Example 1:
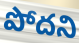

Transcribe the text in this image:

పోదని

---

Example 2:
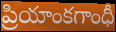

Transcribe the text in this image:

ప్రియాంకగాంధీ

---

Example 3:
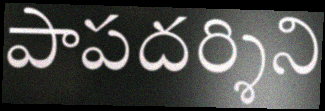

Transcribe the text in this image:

పాపదర్శిని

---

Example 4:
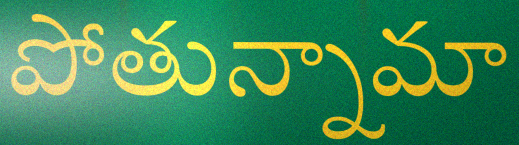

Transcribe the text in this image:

పోతున్నామా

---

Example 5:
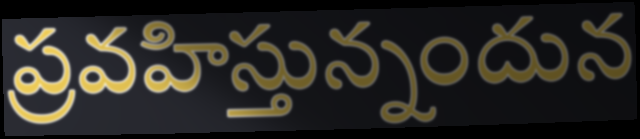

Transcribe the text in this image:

ప్రవహిస్తున్నందున